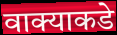
वाक्याकडे